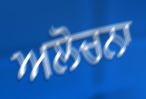
ਅਲੋਚਨਾ